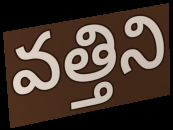
వత్తిని